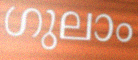
ഗുലാം